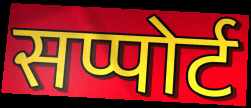
सप्पोर्ट